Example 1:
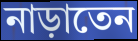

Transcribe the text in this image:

নাড়াতেন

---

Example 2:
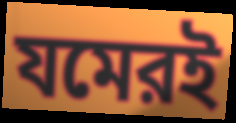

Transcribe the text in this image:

যমেরই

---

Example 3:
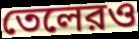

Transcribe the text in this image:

তেলেরও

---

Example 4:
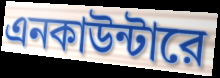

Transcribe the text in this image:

এনকাউন্টারে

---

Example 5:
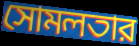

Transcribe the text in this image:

সোমলতার